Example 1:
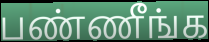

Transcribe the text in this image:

பண்ணீங்க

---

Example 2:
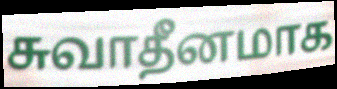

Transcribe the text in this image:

சுவாதீனமாக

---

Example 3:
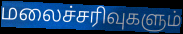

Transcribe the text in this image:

மலைச்சரிவுகளும்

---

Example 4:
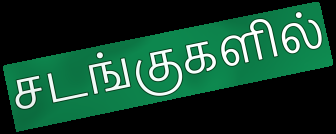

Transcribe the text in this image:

சடங்குகளில்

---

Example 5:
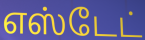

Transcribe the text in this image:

எஸ்டேட்